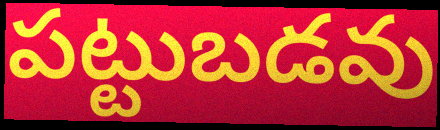
పట్టుబడవు